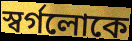
স্বর্গলোকে